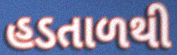
હડતાળથી